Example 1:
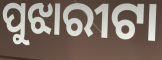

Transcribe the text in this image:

ପୁଝାରୀଟା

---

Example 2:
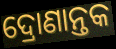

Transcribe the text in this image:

ଦ୍ରୋଣାନ୍ତକ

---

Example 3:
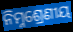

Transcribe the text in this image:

ନିମ୍ନଶ୍ରେଣୀୟ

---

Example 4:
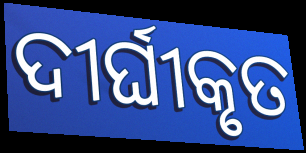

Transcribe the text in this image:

ଦୀର୍ଘୀକୃତ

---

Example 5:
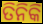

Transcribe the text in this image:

ତିନିକି